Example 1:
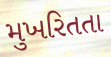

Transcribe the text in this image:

મુખરિતતા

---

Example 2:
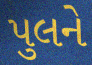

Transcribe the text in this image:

પુલને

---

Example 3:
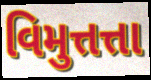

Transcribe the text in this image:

વિમુત્તત્તા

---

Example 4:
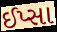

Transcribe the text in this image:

ઈપ્સા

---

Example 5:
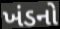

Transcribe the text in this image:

ખંડનો